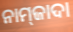
ନାମ୍‌ଜାଦା